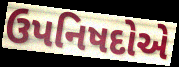
ઉપનિષદોએ